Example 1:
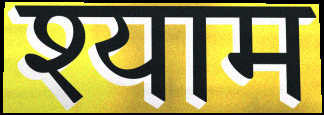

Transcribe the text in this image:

श्‍याम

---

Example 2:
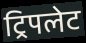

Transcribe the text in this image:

ट्रिपलेट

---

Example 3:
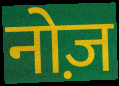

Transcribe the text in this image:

नोज़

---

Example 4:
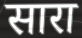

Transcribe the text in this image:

सारा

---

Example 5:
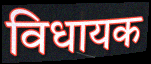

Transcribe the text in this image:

विधायक